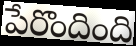
పేరొందింది